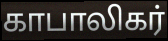
காபாலிகர்